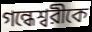
গন্ধেশ্বরীকে